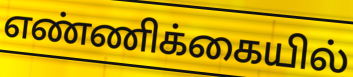
எண்ணிக்கையில்